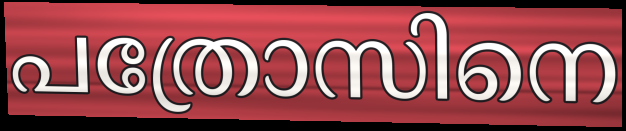
പത്രോസിനെ